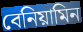
বেনিয়ামিন